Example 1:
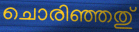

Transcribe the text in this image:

ചൊരിഞ്ഞതു്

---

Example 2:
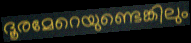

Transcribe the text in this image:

ദൂരമേറെയുണ്ടെങ്കിലും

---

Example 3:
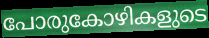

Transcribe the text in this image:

പോരുകോഴികളുടെ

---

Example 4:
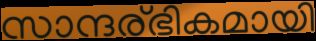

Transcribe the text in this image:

സാന്ദര്ഭികമായി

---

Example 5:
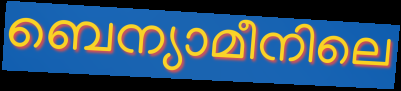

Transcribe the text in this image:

ബെന്യാമീനിലെ